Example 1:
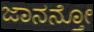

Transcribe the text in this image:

ಜಾನನ್ತೋ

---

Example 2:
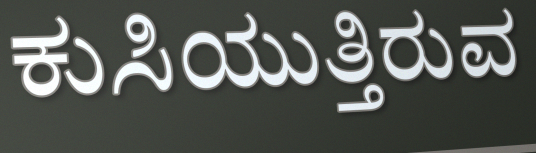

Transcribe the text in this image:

ಕುಸಿಯುತ್ತಿರುವ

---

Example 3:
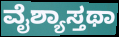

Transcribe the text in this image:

ವೈಶ್ಯಾಸ್ತಥಾ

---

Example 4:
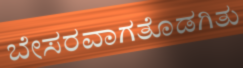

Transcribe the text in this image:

ಬೇಸರವಾಗತೊಡಗಿತು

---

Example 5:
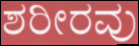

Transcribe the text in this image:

ಶರೀರವು